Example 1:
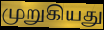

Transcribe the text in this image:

முறுகியது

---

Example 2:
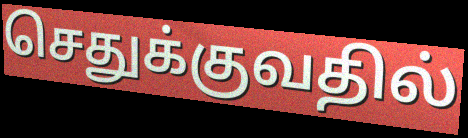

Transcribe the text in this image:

செதுக்குவதில்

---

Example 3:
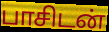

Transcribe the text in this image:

பாசிடன்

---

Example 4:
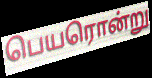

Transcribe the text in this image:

பெயரொன்று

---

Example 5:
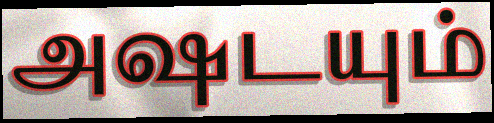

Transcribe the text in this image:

அஷடயும்